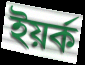
ইয়র্ক